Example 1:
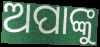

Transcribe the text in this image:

ଅପାଙ୍କୁ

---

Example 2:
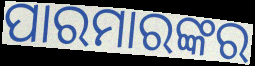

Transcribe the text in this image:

ପାରମାରଙ୍କର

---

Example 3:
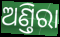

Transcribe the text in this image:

ଅଣ୍ତିରା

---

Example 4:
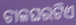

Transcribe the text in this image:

ଚାଳଘରଟିଏ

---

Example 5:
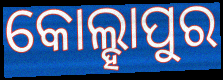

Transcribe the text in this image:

କୋଲ୍ହାପୁର